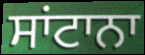
ਸਾਂਟਾਨਾ